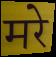
मरे